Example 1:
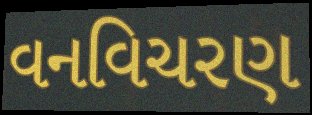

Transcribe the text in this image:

વનવિચરણ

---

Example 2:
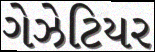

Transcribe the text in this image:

ગેઝેટિયર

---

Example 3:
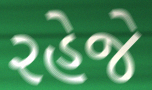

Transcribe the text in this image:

રહેજે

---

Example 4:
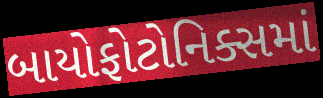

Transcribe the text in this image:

બાયોફોટોનિક્સમાં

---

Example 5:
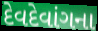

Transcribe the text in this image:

દેવદેવાંગના